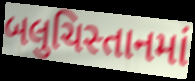
બલુચિસ્તાનમાં